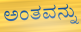
ಅಂತವನ್ನು